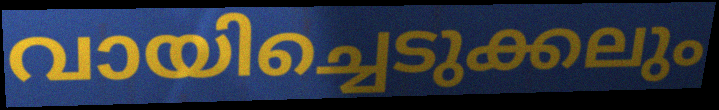
വായിച്ചെടുക്കലും